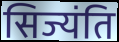
सिज्यंति